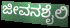
ಜೀವನಶೈಲಿ